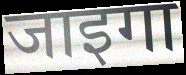
जाइगा